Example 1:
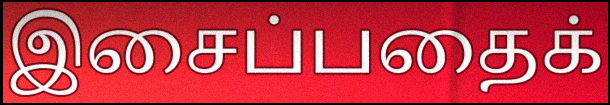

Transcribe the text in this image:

இசைப்பதைக்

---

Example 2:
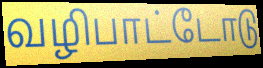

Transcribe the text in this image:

வழிபாட்டோடு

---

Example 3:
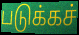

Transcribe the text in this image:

படுக்கச்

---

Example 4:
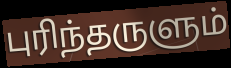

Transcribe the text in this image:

புரிந்தருளும்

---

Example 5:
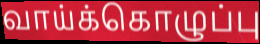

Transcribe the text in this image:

வாய்க்கொழுப்பு